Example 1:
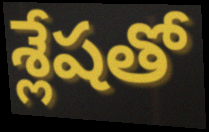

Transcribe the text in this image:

శ్లేషతో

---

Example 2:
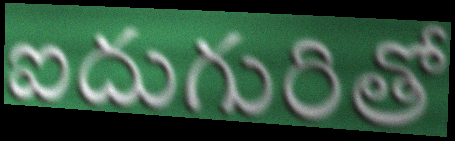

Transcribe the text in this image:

ఐదుగురితో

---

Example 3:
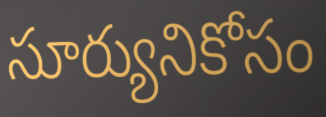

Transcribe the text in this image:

సూర్యునికోసం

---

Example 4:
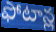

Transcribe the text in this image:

ఫోటాన్ల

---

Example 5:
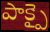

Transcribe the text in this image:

పాక్పై